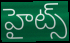
హైట్స్